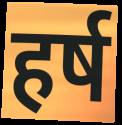
हर्ष